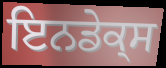
ਇਨਡੇਕ੍ਸ